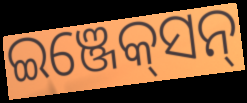
ଇଞ୍ଜେକ୍‍ସନ୍